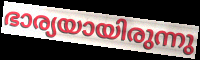
ഭാര്യയായിരുന്നു